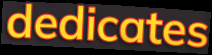
dedicates